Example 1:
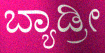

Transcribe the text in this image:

ಬ್ಯಾಡ್ರೀ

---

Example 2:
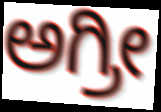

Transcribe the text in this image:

ಅಗ್ರೀ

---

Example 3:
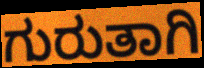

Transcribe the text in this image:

ಗುರುತಾಗಿ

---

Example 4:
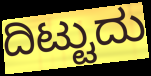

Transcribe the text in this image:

ದಿಟ್ಟುದು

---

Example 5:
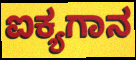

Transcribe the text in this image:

ಐಕ್ಯಗಾನ